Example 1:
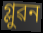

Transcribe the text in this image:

গ্লুৱন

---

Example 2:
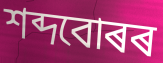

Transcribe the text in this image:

শব্দবোৰৰ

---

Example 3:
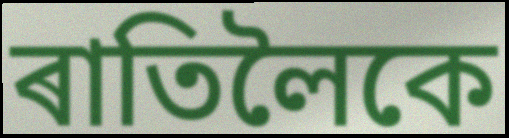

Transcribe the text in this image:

ৰাতিলৈকে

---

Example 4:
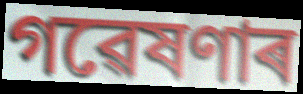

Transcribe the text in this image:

গৱেষণাৰ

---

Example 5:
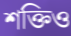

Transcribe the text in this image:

শক্তিও